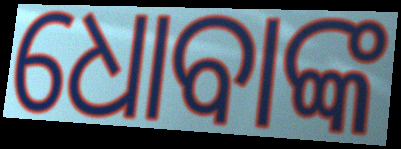
ଧୋବାଙ୍କ